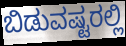
ಬಿಡುವಷ್ಟರಲ್ಲಿ